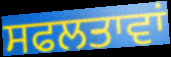
ਸਫਲਤਾਵਾਂ